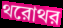
থরোথর